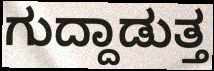
ಗುದ್ದಾಡುತ್ತ